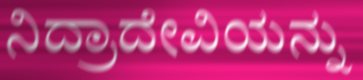
ನಿದ್ರಾದೇವಿಯನ್ನು